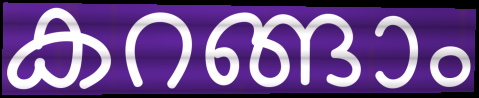
കറങ്ങാം